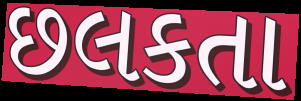
છલકતા